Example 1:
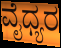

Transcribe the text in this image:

ವೈಧ್ಯರ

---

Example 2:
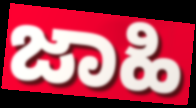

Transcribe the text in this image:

ಜಾಹಿ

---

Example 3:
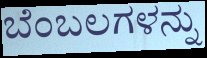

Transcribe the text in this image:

ಬೆಂಬಲಗಳನ್ನು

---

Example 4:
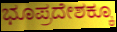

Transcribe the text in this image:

ಭೂಪ್ರದೇಶಕ್ಕೂ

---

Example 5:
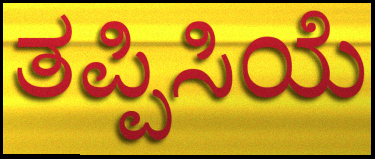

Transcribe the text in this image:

ತಪ್ಪಿಸಿಯೆ